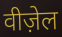
वीज़ेल